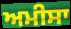
ਅਮੀਸਾ